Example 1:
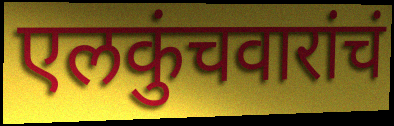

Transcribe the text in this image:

एलकुंचवारांचं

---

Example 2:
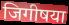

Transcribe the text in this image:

जिगीषया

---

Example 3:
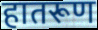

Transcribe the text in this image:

हातरूण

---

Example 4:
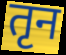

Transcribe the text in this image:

तृन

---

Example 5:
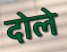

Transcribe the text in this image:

दोले